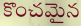
కొంచమైన